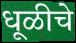
धूळीचे